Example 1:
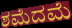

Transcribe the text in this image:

ಶಮೆದಮೆ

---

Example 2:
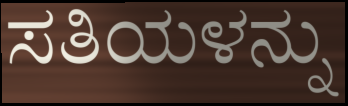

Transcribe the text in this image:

ಸತಿಯಳನ್ನು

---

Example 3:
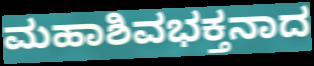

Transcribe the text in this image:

ಮಹಾಶಿವಭಕ್ತನಾದ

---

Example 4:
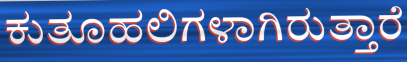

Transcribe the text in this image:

ಕುತೂಹಲಿಗಳಾಗಿರುತ್ತಾರೆ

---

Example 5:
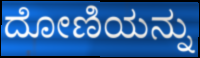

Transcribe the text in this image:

ದೋಣಿಯನ್ನು